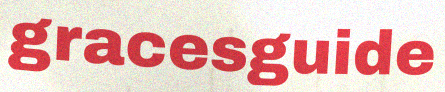
gracesguide